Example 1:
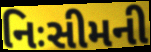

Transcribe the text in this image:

નિઃસીમની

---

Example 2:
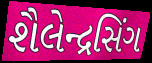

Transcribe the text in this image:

શૈલેન્દ્રસિંગ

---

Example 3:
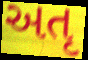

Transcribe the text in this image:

અતૃ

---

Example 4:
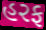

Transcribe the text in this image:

હરફ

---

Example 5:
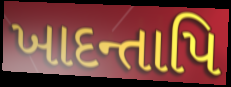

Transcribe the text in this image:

ખાદન્તાપિ